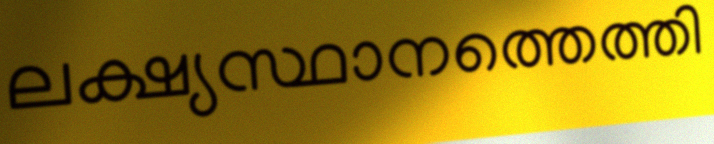
ലക്ഷ്യസ്ഥാനത്തെത്തി